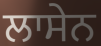
ਲਾਸੇਨ